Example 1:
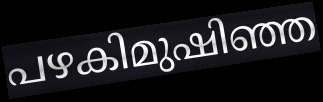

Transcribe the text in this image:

പഴകിമുഷിഞ്ഞ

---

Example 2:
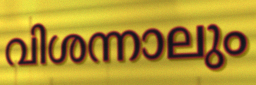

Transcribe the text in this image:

വിശന്നാലും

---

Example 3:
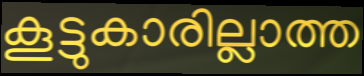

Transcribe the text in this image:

കൂട്ടുകാരില്ലാത്ത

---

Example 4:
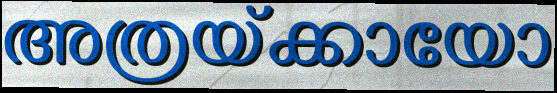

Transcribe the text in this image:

അത്രയ്‌ക്കായോ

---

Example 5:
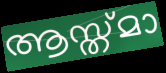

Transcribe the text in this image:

ആസ്ത്മാ